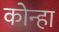
कोन्हा